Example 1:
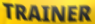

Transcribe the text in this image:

TRAINER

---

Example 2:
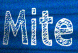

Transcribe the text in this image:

Mite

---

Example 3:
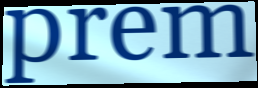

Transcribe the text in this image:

prem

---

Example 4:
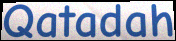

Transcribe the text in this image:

Qatadah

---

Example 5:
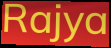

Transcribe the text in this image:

Rajya